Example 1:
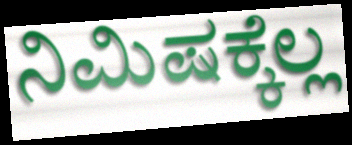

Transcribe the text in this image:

ನಿಮಿಷಕ್ಕೆಲ್ಲ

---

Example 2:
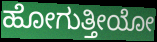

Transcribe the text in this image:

ಹೋಗುತ್ತೀಯೋ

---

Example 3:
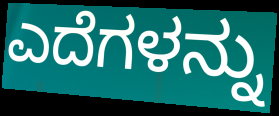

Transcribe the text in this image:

ಎದೆಗಳನ್ನು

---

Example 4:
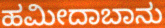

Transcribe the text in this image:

ಹಮೀದಾಬಾನು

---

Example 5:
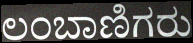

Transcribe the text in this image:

ಲಂಬಾಣಿಗರು